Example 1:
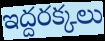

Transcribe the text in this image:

ఇద్దరక్కలు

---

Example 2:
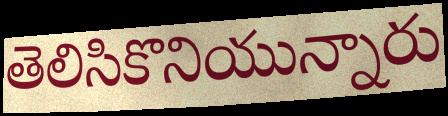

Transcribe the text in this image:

తెలిసికొనియున్నారు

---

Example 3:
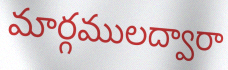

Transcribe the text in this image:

మార్గములద్వారా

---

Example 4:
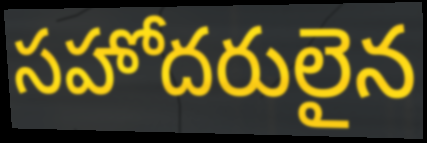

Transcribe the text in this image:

సహోదరులైన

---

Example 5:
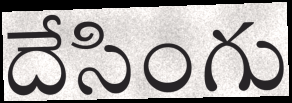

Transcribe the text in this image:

దేసింగు